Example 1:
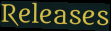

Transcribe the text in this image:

Releases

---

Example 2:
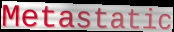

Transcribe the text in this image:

Metastatic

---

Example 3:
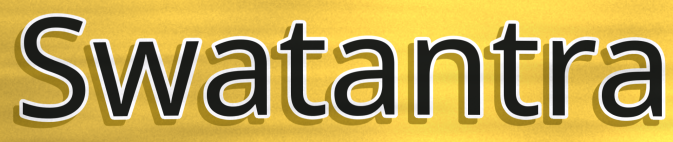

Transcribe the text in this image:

Swatantra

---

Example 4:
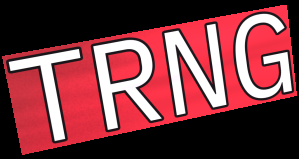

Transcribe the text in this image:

TRNG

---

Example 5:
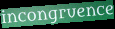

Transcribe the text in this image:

incongruence